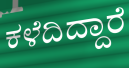
ಕಳೆದಿದ್ದಾರೆ